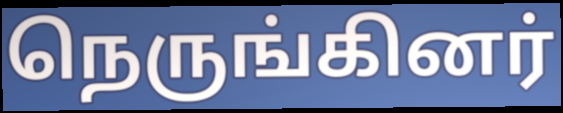
நெருங்கினர்